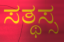
ಸತ್ಥಸ್ಸ